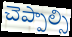
చెప్పాల్సి